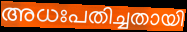
അധഃപതിച്ചതായി